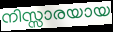
നിസ്സാരയായ